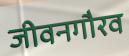
जीवनगौरव